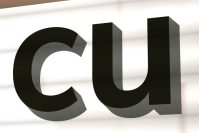
cu